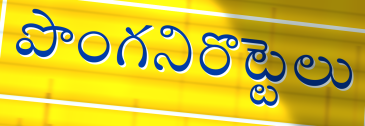
పొంగనిరొట్టెలు